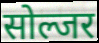
सोल्जर